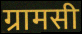
ग्रामसी